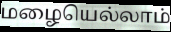
மழையெல்லாம்